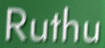
Ruthu